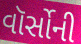
વૉર્સોની